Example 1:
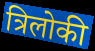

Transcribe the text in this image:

त्रिलोकी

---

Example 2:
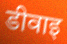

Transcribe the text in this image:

डीवाइ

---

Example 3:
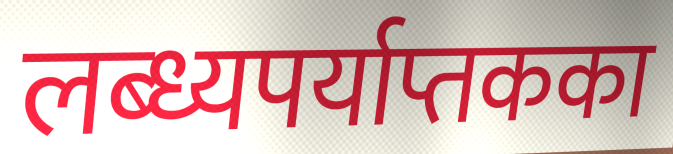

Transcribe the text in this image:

लब्ध्यपर्याप्तकका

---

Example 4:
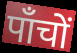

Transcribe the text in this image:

पाँचों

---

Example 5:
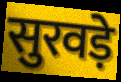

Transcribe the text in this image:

सुरवड़े